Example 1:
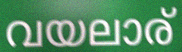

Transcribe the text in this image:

വയലാര്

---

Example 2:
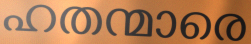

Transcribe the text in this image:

ഹതന്മാരെ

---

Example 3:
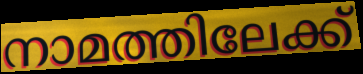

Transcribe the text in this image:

നാമത്തിലേക്ക്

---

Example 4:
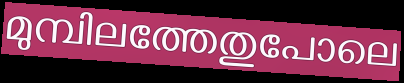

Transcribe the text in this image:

മുമ്പിലത്തേതുപോലെ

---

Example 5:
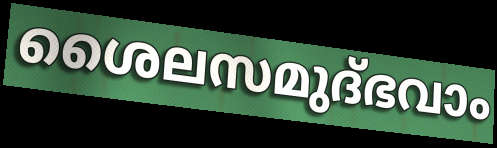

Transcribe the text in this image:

ശൈലസമുദ്ഭവാം